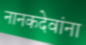
नानकदेवांना